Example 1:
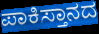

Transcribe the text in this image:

ಪಾಕಿಸ್ತಾನದ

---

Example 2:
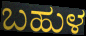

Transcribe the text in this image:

ಬಹುಳ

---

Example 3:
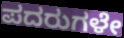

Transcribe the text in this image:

ಪದರುಗಳೇ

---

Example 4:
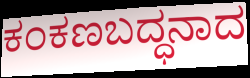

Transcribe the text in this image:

ಕಂಕಣಬದ್ಧನಾದ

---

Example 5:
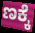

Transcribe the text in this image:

ಣಕ್ಕೆ